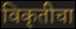
विकृतीचा